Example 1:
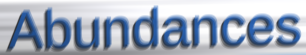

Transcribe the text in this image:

Abundances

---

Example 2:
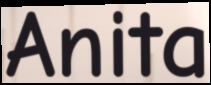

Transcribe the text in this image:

Anita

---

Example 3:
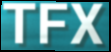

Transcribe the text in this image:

TFX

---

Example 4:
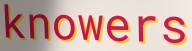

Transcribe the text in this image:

knowers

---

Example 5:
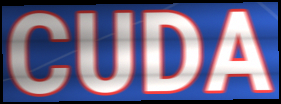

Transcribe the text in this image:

CUDA